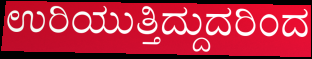
ಉರಿಯುತ್ತಿದ್ದುದರಿಂದ